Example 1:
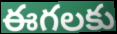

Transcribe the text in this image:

ఈగలకు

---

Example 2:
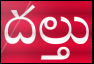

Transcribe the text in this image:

దల్తు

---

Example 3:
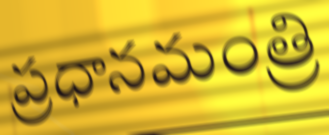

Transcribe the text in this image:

ప్రధానమంత్రి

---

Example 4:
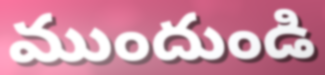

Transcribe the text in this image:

ముందుండి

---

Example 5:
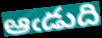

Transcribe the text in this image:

ఆఁడుది